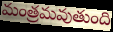
మంత్రమవుతుంది